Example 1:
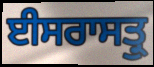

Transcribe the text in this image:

ਈਸਰਾਸਤ੍ਰੁ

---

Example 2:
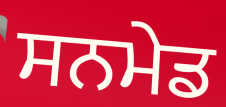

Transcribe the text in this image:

ਸਨਮੇਡ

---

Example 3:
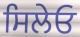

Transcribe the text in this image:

ਸਿਲੇਓ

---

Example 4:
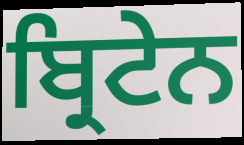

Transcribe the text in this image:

ਬ੍ਰਿਟੇਨ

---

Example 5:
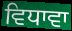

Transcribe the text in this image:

ਵਿਧਾਵਾ